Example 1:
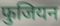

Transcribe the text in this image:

फुजियन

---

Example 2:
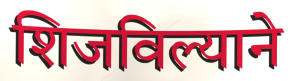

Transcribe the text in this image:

शिजविल्याने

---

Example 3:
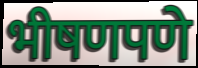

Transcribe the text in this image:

भीषणपणे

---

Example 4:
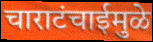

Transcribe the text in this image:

चाराटंचाईमुळे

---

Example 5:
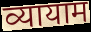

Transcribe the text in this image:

व्यायाम